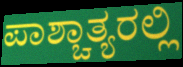
ಪಾಶ್ಚಾತ್ಯರಲ್ಲಿ